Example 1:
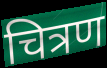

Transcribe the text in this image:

चित्रण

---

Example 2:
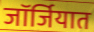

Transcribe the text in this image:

जॉर्जियात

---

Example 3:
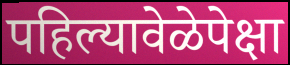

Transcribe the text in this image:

पहिल्यावेळेपेक्षा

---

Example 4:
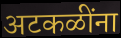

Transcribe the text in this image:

अटकळींना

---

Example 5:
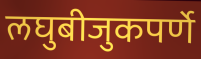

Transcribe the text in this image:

लघुबीजुकपर्णे